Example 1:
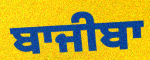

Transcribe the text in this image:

ਬਾਜੀਬਾ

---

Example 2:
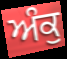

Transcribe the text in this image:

ਅੰਕੁ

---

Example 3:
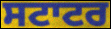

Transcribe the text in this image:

ਸਟਾਟਰ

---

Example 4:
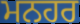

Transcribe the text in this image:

ਮਨਹਰ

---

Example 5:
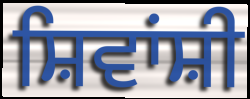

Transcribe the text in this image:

ਸ਼ਿਵਾਂਸ਼ੀ